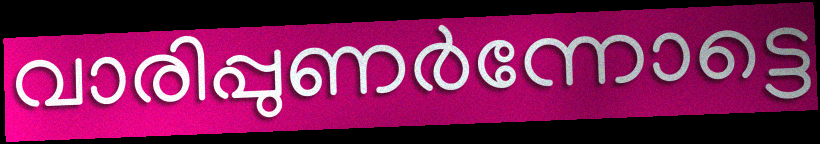
വാരിപ്പുണർന്നോട്ടെ